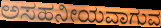
ಅಸಹನೀಯವಾಗುವ